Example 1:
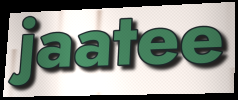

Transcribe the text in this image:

jaatee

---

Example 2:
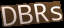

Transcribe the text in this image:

DBRs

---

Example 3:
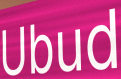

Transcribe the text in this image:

Ubud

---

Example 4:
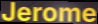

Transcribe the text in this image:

Jerome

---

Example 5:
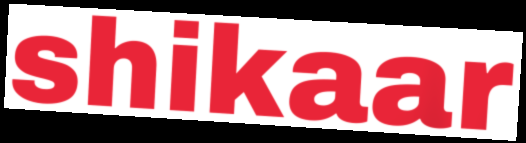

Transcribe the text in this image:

shikaar